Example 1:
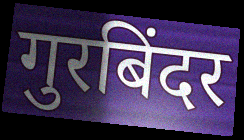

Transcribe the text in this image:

गुरबिंदर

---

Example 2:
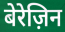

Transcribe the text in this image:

बेरेज़िन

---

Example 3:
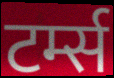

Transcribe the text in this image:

टर्म्स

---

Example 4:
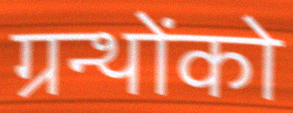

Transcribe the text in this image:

ग्रन्थोंको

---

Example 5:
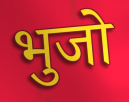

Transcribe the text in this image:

भुजो